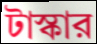
টাস্কার